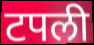
टपली